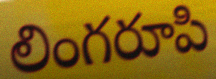
లింగరూపి